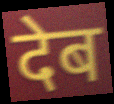
देब